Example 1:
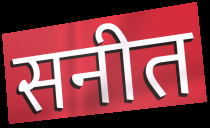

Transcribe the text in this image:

सनीत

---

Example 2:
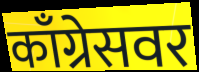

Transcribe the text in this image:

काँग्रेसवर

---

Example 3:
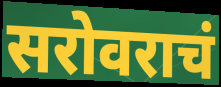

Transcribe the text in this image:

सरोवराचं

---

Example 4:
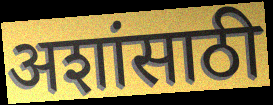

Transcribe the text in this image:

अशांसाठी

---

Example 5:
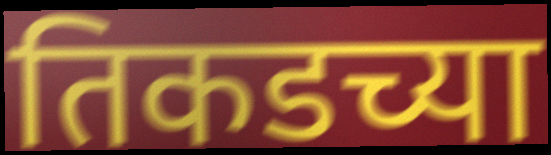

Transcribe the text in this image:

तिकडच्या